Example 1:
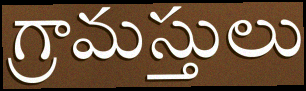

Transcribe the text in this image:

గ్రామస్తులు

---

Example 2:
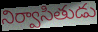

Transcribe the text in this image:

నిర్వాసితుడు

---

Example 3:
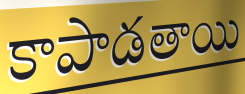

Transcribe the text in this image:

కాపాడతాయి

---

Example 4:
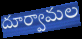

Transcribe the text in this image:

దూర్వామల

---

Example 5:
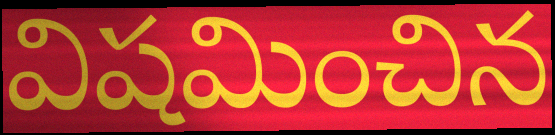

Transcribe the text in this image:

విషమించిన